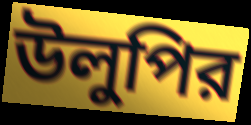
উলুপির